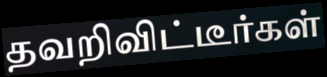
தவறிவிட்டீர்கள்